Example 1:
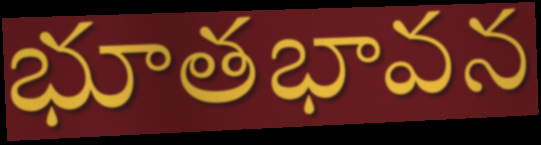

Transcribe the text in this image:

భూతభావన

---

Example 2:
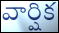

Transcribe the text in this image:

వార్షిక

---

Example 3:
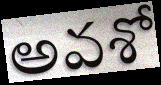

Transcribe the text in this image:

అవశో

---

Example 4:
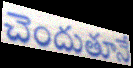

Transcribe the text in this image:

చెందుతూనే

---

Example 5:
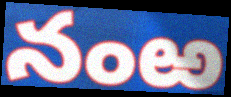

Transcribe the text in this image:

నంఱ